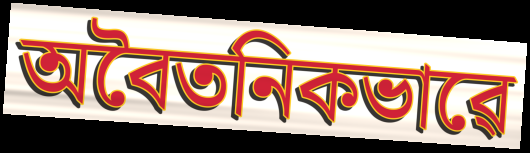
অবৈতনিকভাৱে